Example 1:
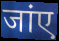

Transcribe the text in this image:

जांए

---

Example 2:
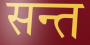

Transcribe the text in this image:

सन्त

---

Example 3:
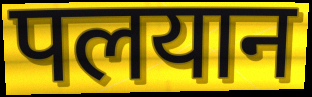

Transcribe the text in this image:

पलयान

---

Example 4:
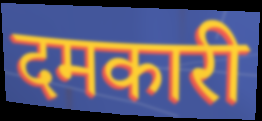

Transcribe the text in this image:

दमकारी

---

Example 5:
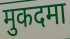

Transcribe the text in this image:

मुकदमा